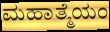
ಮಹಾತ್ಮೆಯಂ